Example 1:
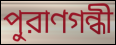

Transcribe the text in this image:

পুরাণগন্ধী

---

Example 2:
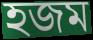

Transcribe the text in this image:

হজম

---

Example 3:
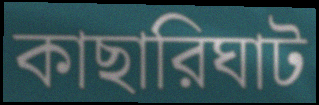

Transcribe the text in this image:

কাছারিঘাট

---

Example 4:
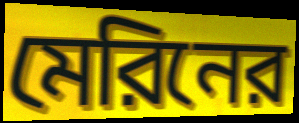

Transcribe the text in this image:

মেরিনের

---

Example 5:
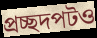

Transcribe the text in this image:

প্রচ্ছদপটও